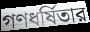
গণধর্ষিতার